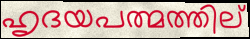
ഹൃദയപത്മത്തില്